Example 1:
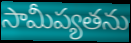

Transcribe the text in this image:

సామీప్యతను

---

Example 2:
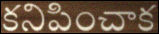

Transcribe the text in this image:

కనిపించాక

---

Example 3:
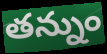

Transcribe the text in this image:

తన్నుం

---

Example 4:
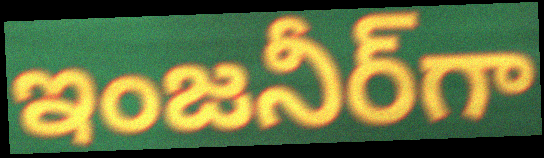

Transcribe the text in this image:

ఇంజనీర్‌గా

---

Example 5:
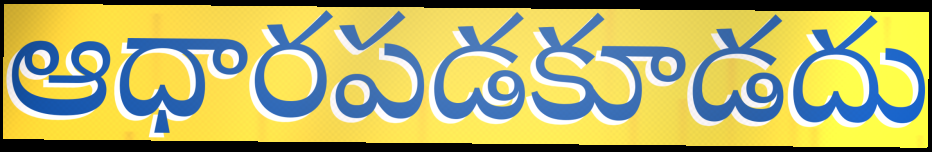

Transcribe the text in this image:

ఆధారపడకూడదు